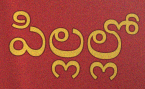
పిల్లల్లో